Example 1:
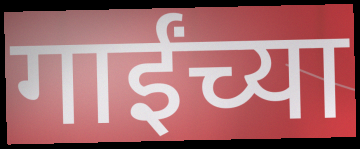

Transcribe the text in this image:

गाईंच्या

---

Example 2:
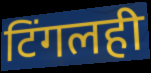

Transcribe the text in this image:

टिंगलही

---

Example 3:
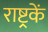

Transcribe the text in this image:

राष्ट्रकें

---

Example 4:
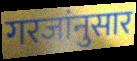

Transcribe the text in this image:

गरजांनुसार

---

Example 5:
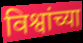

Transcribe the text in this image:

विश्वांच्या